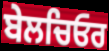
ਬੇਲਚਿਓਰ